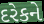
દરેકને